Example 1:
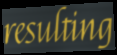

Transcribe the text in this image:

resulting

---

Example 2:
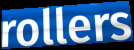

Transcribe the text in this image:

rollers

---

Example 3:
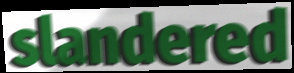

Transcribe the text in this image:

slandered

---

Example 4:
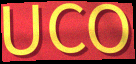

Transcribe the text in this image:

UCO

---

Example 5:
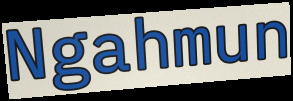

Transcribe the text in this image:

Ngahmun